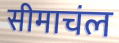
सीमाचंल